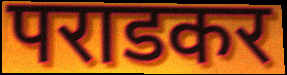
पराडकर